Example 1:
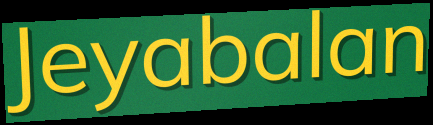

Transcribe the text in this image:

Jeyabalan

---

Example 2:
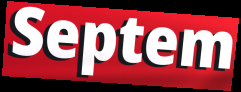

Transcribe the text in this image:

Septem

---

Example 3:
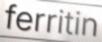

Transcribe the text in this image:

ferritin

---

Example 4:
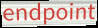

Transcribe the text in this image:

endpoint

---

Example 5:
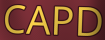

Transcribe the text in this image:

CAPD